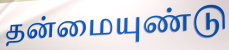
தன்மையுண்டு